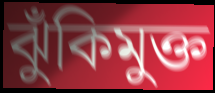
ঝুঁকিমুক্ত